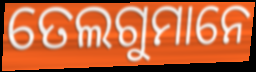
ତେଲଗୁମାନେ